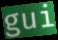
gui